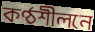
কণ্ঠশীলনে